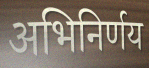
अभिनिर्णय